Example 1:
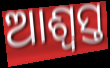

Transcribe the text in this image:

ଆଶ୍ବସ୍ତ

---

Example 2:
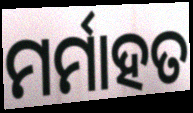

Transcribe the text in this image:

ମର୍ମାହତ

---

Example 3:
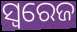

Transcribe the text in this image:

ସ୍ବରେଜ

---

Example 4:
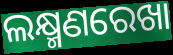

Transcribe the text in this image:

ଲକ୍ଷ୍ମଣରେଖା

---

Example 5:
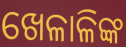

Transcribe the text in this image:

ଖେଳାଳିଙ୍କ